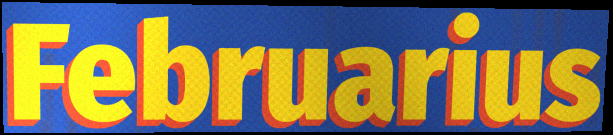
Februarius